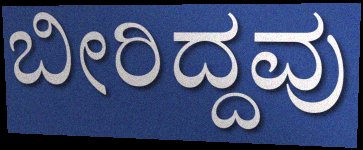
ಬೀರಿದ್ದವು